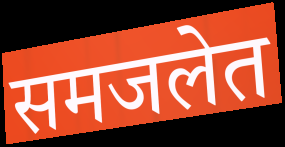
समजलेत